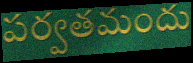
పర్వతమందు